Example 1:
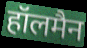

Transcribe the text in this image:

हॉलमैन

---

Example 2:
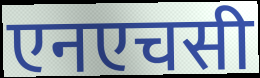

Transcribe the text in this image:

एनएचसी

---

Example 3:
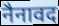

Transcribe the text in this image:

नैनावद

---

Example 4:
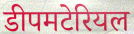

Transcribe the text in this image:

डीपमटेरियल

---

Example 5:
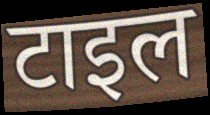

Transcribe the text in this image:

टाइल